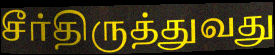
சீர்திருத்துவது